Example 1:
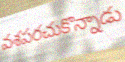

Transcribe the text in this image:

వశపరచుకొన్నాడు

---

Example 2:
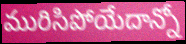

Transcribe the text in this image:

మురిసిపోయేదాన్నో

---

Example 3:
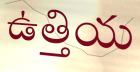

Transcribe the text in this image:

ఉత్తియ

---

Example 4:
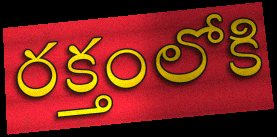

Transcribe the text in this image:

రక్తంలోకి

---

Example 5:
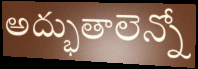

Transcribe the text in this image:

అద్భుతాలెన్నో